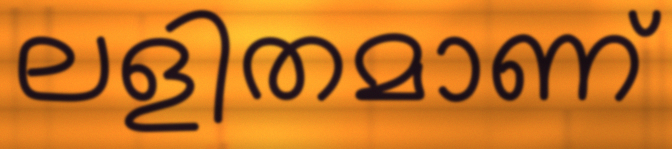
ലളിതമാണ്